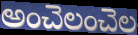
అంచెలంచెల